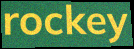
rockey